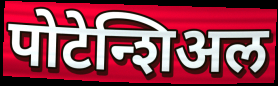
पोटेन्शिअल